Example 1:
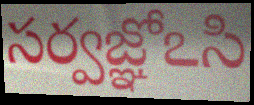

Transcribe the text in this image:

సర్వజ్ఞోఽసి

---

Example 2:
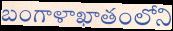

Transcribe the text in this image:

బంగాళాఖాతంలోని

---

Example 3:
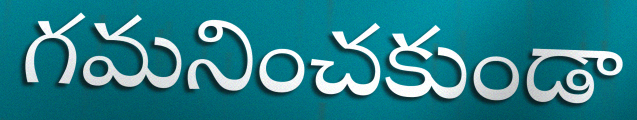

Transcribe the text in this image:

గమనించకుండా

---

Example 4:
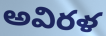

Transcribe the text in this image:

అవిరళ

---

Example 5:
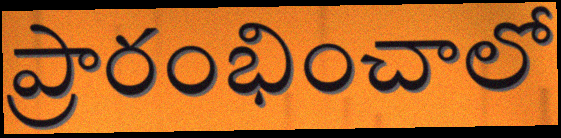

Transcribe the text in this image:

ప్రారంభించాలో